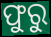
ଫୁରୁ